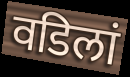
वडिलां